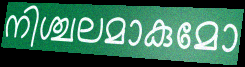
നിശ്ചലമാകുമോ